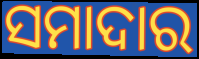
ସମାଦାର